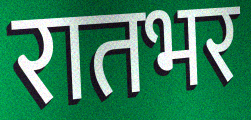
रातभर